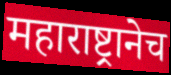
महाराष्ट्रानेच